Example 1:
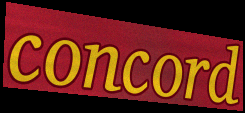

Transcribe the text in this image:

concord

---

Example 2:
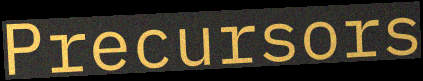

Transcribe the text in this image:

Precursors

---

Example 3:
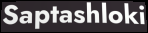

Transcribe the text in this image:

Saptashloki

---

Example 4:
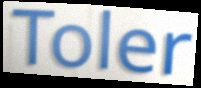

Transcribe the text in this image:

Toler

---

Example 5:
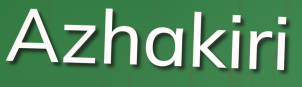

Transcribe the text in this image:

Azhakiri